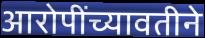
आरोपींच्यावतीने